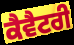
ਕੈਵੈਟਰੀ